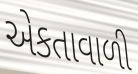
એકતાવાળી